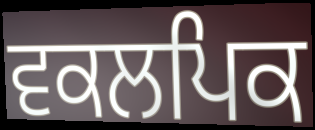
ਵਕਲਪਿਕ